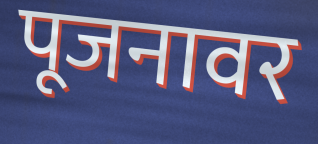
पूजनावर